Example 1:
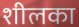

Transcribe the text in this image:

शीलका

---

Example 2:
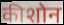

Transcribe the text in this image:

कीशोन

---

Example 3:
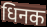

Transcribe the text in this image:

धिनक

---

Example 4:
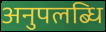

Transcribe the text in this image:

अनुपलब्धि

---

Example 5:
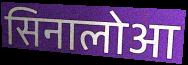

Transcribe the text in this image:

सिनालोआ